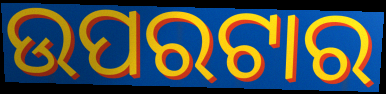
ଉପରଟାର